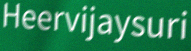
Heervijaysuri